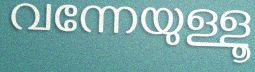
വന്നേയുള്ളൂ